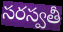
సరస్వతీ